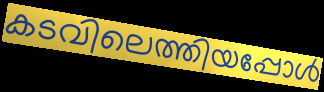
കടവിലെത്തിയപ്പോൾ